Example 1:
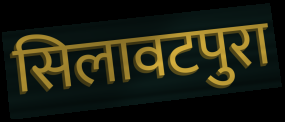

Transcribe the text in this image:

सिलावटपुरा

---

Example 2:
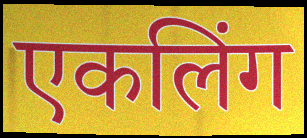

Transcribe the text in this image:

एकलिंग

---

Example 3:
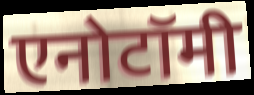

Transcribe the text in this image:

एनोटॉमी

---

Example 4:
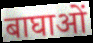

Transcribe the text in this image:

बाघाओं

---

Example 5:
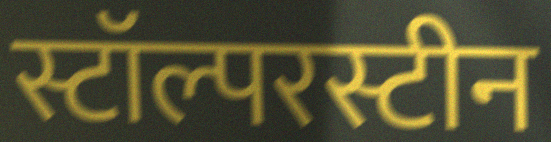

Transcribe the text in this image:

स्टॉल्परस्टीन